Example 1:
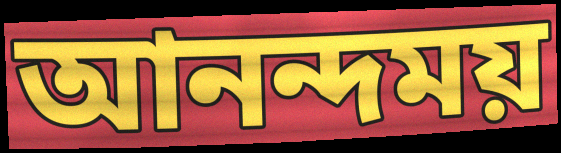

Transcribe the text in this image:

আনন্দময়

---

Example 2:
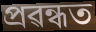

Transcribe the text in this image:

প্ৰৱন্ধত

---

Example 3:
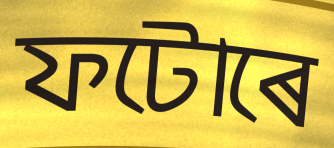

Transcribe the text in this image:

ফটোৰে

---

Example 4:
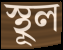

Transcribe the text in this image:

স্থূল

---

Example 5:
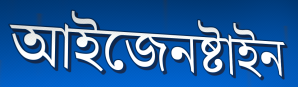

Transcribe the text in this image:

আইজেনষ্টাইন